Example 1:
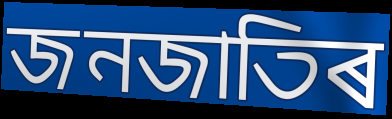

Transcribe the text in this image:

জনজাতিৰ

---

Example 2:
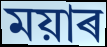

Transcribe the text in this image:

ময়াৰ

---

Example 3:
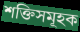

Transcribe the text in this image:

শক্তিসমূহক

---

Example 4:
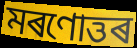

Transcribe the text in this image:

মৰণোত্তৰ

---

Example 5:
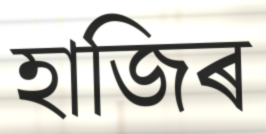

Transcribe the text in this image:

হাজিৰ